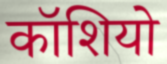
कॉशियो